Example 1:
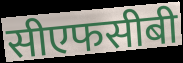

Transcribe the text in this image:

सीएफसीबी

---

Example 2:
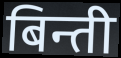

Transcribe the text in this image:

बिन्ती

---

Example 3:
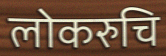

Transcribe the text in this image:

लोकरुचि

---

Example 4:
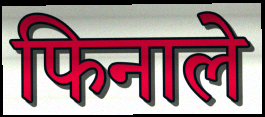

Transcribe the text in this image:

फिनाले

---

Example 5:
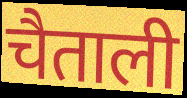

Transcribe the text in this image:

चैताली